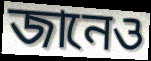
জানেও